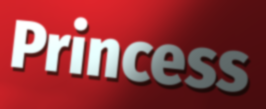
Princess